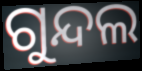
ଗୁନ୍ଦଲ